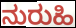
ನುರುಹಿ